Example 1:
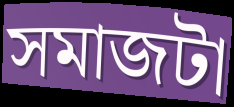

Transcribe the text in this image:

সমাজটা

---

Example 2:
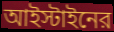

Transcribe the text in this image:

আইস্টাইনের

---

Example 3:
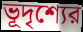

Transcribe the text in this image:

ভূদৃশ্যের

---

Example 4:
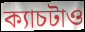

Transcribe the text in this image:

ক্যাচটাও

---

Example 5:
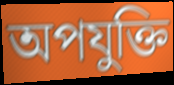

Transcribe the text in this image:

অপযুক্তি